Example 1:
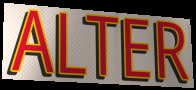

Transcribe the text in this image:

ALTER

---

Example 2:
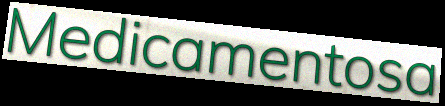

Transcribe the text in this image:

Medicamentosa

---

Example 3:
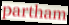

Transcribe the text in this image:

partham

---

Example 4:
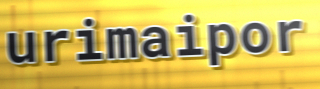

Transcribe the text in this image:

urimaipor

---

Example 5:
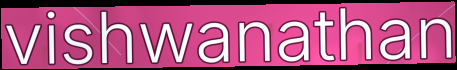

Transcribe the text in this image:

vishwanathan